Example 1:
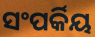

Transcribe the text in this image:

ସଂପର୍କିୟ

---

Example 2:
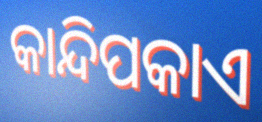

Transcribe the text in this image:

କାନ୍ଦିପକାଏ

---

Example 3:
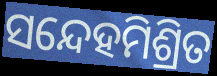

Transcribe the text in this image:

ସନ୍ଦେହମିଶ୍ରିତ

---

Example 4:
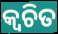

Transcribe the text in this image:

କ୍ବଚିତ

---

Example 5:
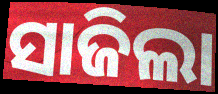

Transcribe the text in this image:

ସାଜିଲା